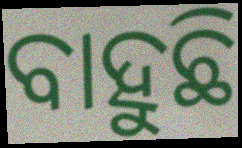
ବାହୁଛି